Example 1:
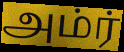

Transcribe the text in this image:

அம்ர்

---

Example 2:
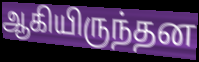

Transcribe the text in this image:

ஆகியிருந்தன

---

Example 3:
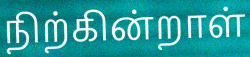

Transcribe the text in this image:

நிற்கின்றாள்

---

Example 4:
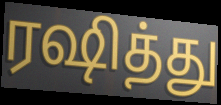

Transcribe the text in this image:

ரஷித்து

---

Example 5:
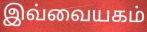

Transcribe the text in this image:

இவ்வையகம்